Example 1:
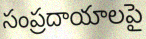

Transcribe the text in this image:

సంప్రదాయాలపై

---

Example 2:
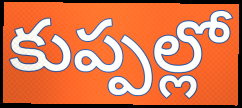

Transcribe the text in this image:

కుప్పల్లో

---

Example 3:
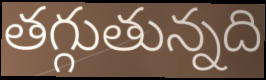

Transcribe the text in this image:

తగ్గుతున్నది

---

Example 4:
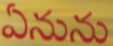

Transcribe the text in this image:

ఏనును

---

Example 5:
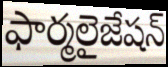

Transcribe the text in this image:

ఫార్మలైజేషన్